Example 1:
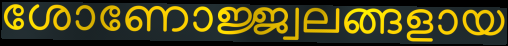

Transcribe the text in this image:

ശോണോജ്ജ്വലങ്ങളായ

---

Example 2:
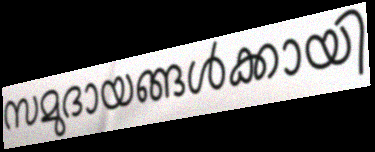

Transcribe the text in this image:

സമുദായങ്ങൾക്കായി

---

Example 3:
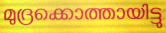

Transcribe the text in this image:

മുദ്രക്കൊത്തായിട്ടു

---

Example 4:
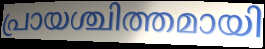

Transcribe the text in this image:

പ്രായശ്ചിത്തമായി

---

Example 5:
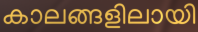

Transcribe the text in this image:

കാലങ്ങളിലായി